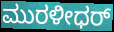
ಮುರಳೀಧರ್